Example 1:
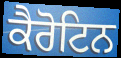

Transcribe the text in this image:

ਕੈਰੋਟਿਨ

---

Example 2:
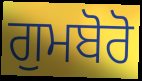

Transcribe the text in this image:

ਗੁਮਬੋਰੋ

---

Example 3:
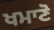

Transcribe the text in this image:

ਖਮਾਣੋ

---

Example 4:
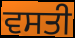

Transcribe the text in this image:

ਵਸਤੀ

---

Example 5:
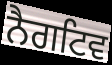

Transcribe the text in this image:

ਨੈਗਟਿਵ